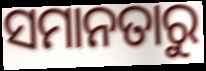
ସମାନତାରୁ